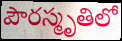
పౌరస్మృతిలో